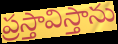
ప్రస్తావిస్తాను